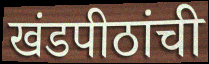
खंडपीठांची